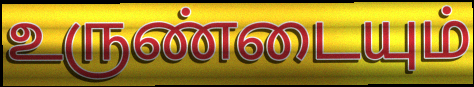
உருண்டையும்